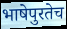
भाषेपुरतेच